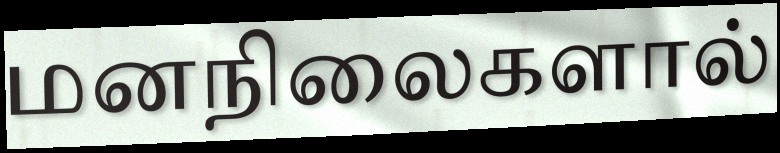
மனநிலைகளால்